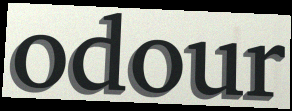
odour